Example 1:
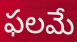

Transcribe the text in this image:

ఫలమే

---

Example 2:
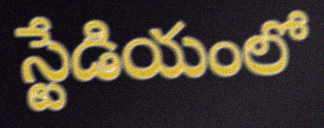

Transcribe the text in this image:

స్టేడియంలో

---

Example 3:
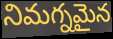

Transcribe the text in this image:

నిమగ్నమైన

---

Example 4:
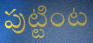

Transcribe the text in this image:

పుట్టింట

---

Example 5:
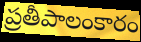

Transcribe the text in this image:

ప్రతీపాలంకారం